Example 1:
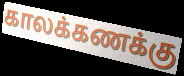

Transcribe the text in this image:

காலக்கணக்கு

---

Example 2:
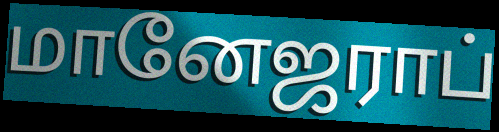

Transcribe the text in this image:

மானேஜராப்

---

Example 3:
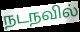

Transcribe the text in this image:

நடநவில்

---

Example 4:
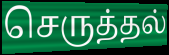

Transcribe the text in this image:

செருத்தல்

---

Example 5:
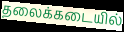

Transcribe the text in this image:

தலைக்கடையில்